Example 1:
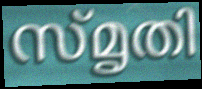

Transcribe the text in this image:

സ്മൃതി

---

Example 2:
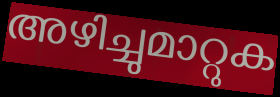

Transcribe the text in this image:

അഴിച്ചുമാറ്റുക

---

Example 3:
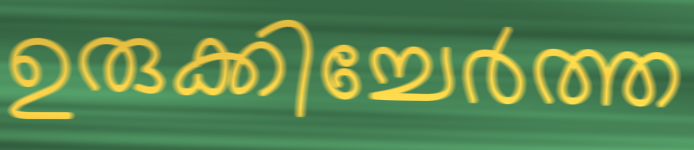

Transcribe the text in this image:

ഉരുക്കിച്ചേർത്ത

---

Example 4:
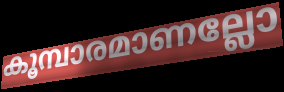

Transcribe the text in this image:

കൂമ്പാരമാണല്ലോ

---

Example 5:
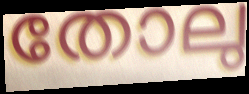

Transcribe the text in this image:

തോലു